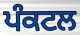
ਪੰਕਟਲ